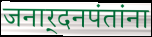
जनार्दनपंतांना